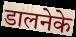
डालनेके